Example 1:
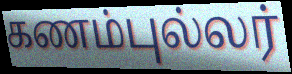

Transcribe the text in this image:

கணம்புல்லர்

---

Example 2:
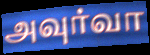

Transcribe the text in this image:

அவுர்வா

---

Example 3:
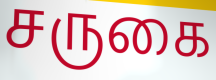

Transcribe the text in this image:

சருகை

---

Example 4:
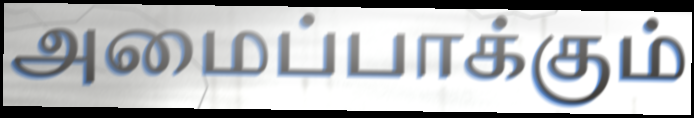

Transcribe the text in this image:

அமைப்பாக்கும்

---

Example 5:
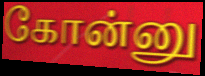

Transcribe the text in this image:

கோன்னு